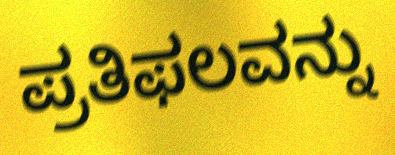
ಪ್ರತಿಫಲವನ್ನು